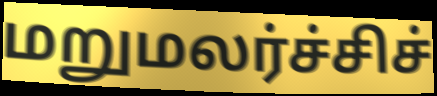
மறுமலர்ச்சிச்